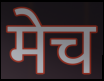
मेच